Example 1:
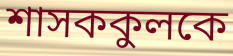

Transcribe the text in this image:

শাসককুলকে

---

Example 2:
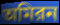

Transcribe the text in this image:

অমিরন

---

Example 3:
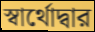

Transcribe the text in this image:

স্বার্থোদ্বার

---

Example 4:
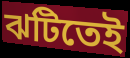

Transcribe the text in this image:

ঝটিতেই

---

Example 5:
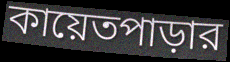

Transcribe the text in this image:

কায়েতপাড়ার